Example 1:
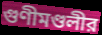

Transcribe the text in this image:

গুণীমণ্ডলীর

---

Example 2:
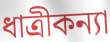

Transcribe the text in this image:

ধাত্রীকন্যা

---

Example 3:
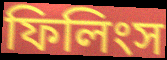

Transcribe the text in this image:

ফিলিংস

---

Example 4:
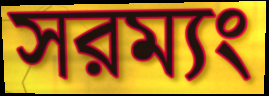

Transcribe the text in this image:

সরম্যং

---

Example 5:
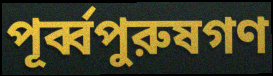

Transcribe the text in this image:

পূর্ব্বপুরুষগণ